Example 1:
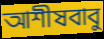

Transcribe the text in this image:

আশীষবাবু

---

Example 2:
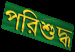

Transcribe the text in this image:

পরিশুদ্ধ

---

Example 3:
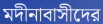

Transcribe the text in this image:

মদীনাবাসীদের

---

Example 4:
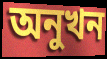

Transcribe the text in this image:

অনুখন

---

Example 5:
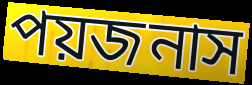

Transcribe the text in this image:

পয়জনাস